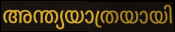
അന്ത്യയാത്രയായി